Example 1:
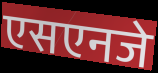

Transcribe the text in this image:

एसएनजे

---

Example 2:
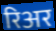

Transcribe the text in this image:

रिअर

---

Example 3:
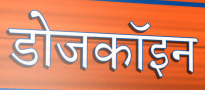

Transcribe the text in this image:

डोजकॉइन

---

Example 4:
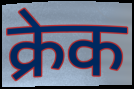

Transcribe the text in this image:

क्रेक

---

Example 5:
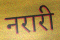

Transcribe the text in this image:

नरारी